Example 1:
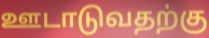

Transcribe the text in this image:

ஊடாடுவதற்கு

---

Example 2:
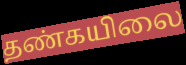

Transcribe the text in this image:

தண்கயிலை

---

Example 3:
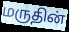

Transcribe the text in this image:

மருதின்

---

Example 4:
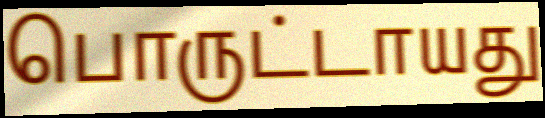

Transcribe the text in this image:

பொருட்டாயது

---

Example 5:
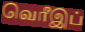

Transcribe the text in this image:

வெரீஇப்